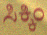
ಸಿಕ್ಕಿಂ